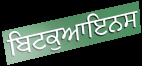
ਬਿਟਕੁਆਇਨਸ